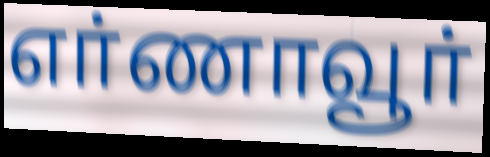
எர்ணாவூர்